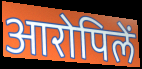
आरोपिलें